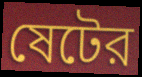
ষেটের